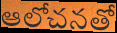
ఆలోచనతో